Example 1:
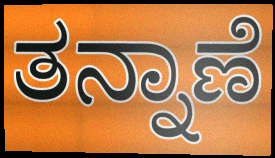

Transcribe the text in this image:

ತನ್ನಾಣೆ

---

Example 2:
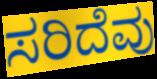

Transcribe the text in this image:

ಸರಿದೆವು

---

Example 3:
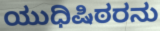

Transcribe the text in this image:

ಯುಧಿಷಿಠರನು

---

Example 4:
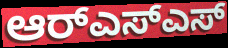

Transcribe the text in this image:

ಆರ್‌ಎಸ್ಎಸ್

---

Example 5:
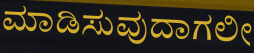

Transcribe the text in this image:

ಮಾಡಿಸುವುದಾಗಲೀ